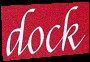
dock